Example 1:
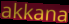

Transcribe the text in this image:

akkana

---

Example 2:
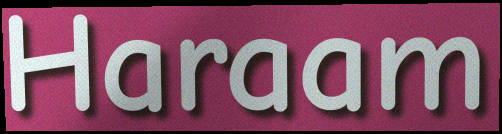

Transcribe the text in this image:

Haraam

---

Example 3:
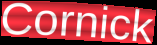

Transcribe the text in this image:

Cornick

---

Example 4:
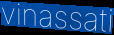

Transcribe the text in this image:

vinassati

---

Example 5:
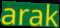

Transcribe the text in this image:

arak